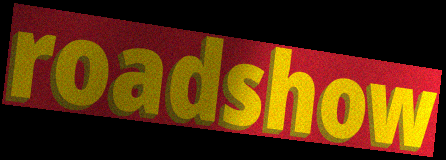
roadshow